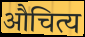
औचित्‍य